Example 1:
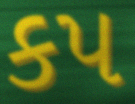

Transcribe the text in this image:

કપ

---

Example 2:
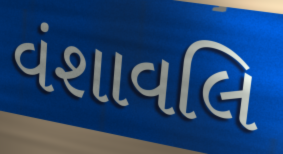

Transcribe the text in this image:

વંશાવલિ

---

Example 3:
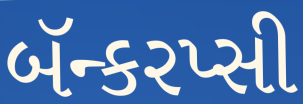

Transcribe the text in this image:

બૅન્કરપ્સી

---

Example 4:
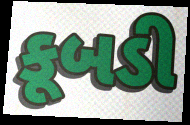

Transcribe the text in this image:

કૂબડી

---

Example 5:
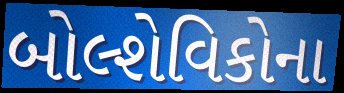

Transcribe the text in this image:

બોલ્શેવિકોના